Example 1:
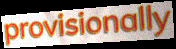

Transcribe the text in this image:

provisionally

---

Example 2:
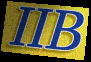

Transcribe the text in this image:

IIB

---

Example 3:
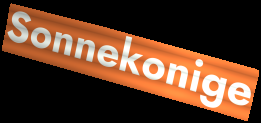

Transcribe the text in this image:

Sonnekonige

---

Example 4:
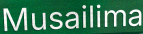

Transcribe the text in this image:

Musailima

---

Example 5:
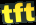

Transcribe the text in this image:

tft